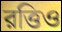
রত্তিও